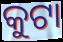
କୁଟା